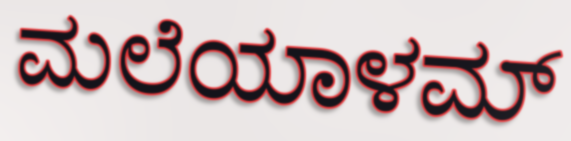
ಮಲೆಯಾಳಮ್